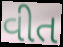
વીત